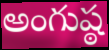
అంగుష్ఠ